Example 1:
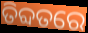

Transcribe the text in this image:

ତିବ୍ଦତରେ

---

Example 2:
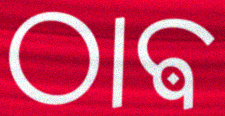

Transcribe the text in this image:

ଠାଵ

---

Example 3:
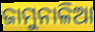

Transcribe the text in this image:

ଜାମୁନାଳିଆ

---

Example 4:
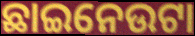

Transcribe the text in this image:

ଛାଇନେଉଟା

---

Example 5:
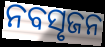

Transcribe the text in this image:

ନବସୃଜନ